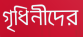
গৃধিনীদের